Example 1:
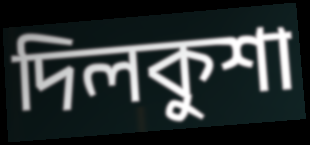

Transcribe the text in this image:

দিলকুশা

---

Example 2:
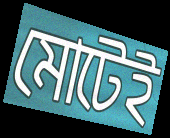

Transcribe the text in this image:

মোটেই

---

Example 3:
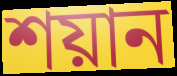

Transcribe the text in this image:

শয়ান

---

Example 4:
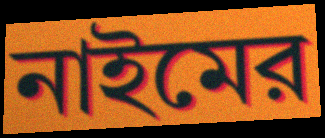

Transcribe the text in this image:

নাইমের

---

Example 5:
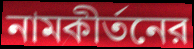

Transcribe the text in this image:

নামকীর্তনের